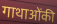
गाथाओंकी